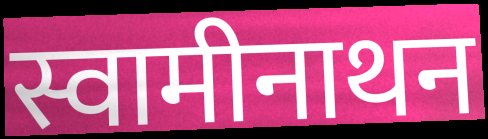
स्वामीनाथन